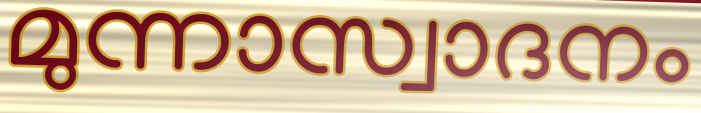
മുന്നാസ്വാദനം